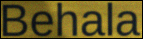
Behala